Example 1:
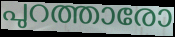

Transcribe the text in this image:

പുറത്താരോ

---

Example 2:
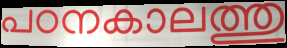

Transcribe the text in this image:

പഠനകാലത്തു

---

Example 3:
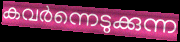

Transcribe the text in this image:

കവർന്നെടുക്കുന്ന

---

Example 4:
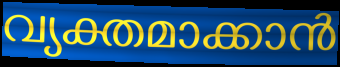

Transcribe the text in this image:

വ്യക്തമാക്കാൻ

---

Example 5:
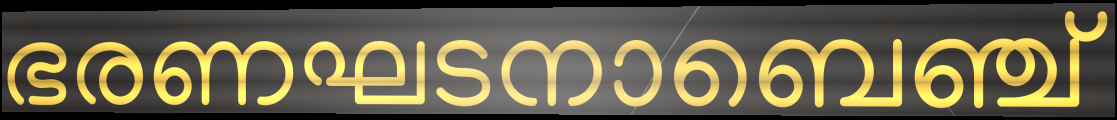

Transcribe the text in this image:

ഭരണഘടനാബെഞ്ച്